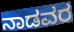
ನಾಡವರ